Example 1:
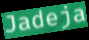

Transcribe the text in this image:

Jadeja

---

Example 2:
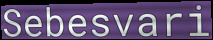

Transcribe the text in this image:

Sebesvari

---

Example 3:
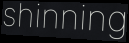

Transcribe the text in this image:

shinning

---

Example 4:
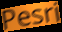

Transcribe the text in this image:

Pesri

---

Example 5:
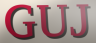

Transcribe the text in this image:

GUJ